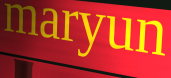
maryun